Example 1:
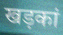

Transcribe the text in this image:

खड़कां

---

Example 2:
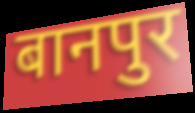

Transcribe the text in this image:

बानपुर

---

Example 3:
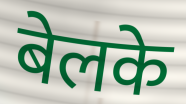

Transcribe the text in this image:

बेलके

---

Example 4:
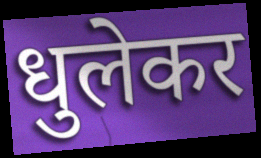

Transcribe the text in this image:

धुलेकर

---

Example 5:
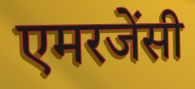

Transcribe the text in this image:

एमरजेंसी